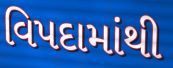
વિપદામાંથી